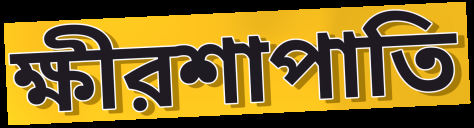
ক্ষীরশাপাতি